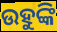
ଉହୁଙ୍କି